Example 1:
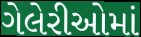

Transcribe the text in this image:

ગેલેરીઓમાં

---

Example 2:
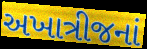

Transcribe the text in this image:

અખાત્રીજનાં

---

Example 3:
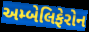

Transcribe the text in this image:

અમ્બેલિફેરોન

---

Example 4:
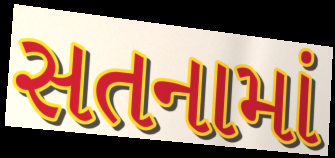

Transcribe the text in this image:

સતનામાં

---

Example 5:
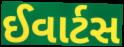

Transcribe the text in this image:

ઈવાર્ટસ